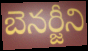
బెనర్జీని